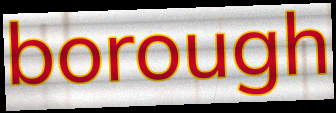
borough